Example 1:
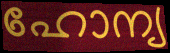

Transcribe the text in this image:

ഹോന്യ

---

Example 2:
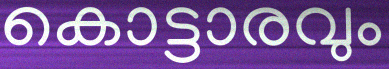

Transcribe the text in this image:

കൊട്ടാരവും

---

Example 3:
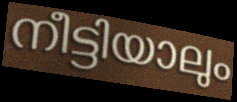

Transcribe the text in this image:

നീട്ടിയാലും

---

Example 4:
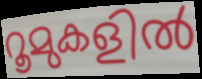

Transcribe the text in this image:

റൂമുകളിൽ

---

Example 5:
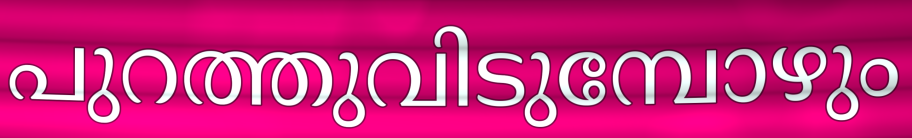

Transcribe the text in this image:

പുറത്തുവിടുമ്പോഴും